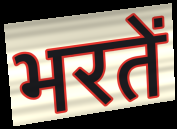
भरतें